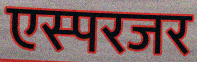
एस्परजर